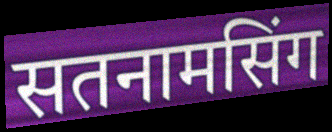
सतनामसिंग